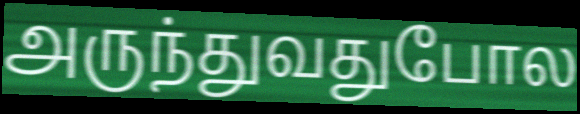
அருந்துவதுபோல